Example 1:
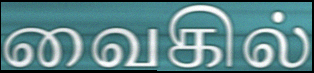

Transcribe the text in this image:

வைகில்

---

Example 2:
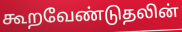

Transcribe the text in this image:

கூறவேண்டுதலின்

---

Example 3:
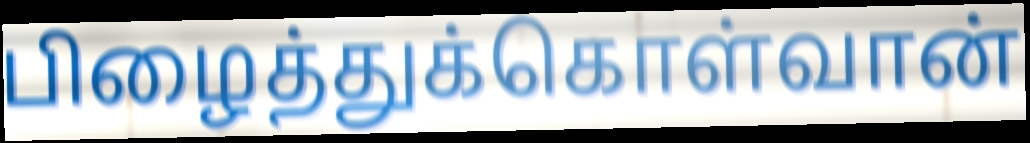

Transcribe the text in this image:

பிழைத்துக்கொள்வான்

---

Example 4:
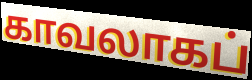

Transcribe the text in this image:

காவலாகப்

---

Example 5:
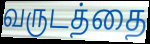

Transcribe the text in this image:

வருடத்தை